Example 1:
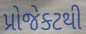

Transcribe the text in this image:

પ્રોજેક્ટથી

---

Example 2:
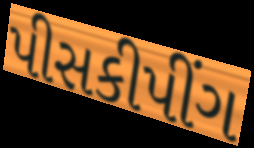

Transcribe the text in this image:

પીસકીપીંગ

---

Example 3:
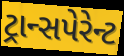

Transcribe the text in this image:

ટ્રાન્સપેરેન્ટ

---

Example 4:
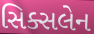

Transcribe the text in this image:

સિક્સલેન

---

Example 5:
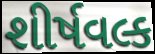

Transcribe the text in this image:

શીર્ષવલ્ક